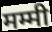
मम्मी